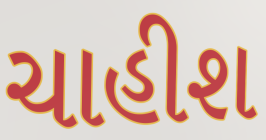
ચાહીશ